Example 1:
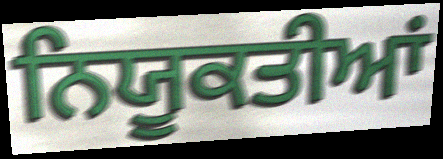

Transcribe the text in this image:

ਨਿਯੂਕਤੀਆਂ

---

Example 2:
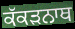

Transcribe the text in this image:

ਕੱਕੜਨਾਥ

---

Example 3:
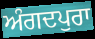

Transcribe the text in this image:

ਅੰਗਦਪੁਰਾ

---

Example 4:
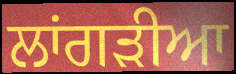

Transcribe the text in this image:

ਲਾਂਗੜੀਆ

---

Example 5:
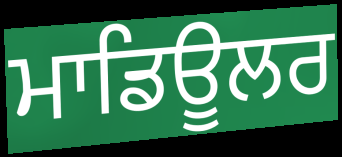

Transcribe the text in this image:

ਮਾਡਿਊਲਰ